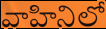
వాహినిలో